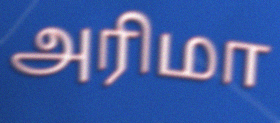
அரிமா